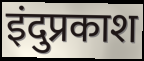
इंदुप्रकाश